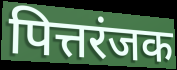
पित्तरंजक